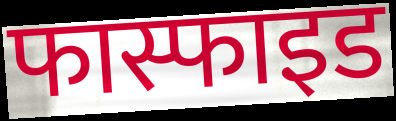
फास्फाइड